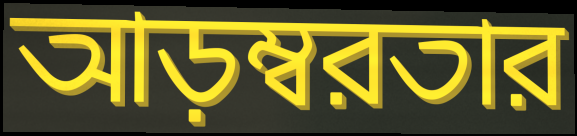
আড়ম্বরতার